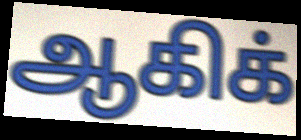
ஆகிக்